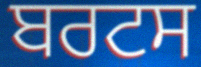
ਬਰਟਸ